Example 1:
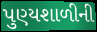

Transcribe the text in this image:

પુણ્યશાળીની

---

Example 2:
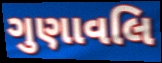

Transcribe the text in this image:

ગુણાવલિ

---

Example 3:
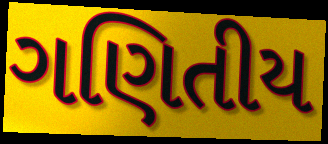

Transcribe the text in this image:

ગણિતીય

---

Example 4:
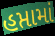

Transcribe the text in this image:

હપ્તામાં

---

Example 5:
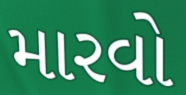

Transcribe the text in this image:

મારવો